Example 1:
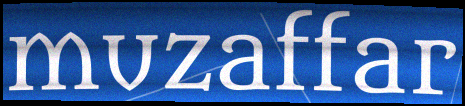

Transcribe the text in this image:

muzaffar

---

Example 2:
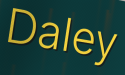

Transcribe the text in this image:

Daley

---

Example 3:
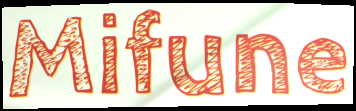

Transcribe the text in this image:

Mifune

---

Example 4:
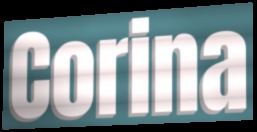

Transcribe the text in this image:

Corina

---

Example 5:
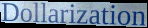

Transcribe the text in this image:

Dollarization